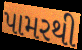
પામરથી